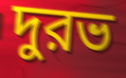
দুরভ